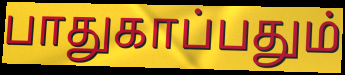
பாதுகாப்பதும்